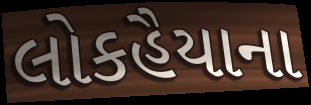
લોકહૈયાના